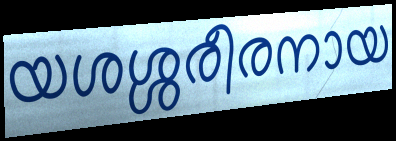
യശശ്ശരീരനായ